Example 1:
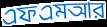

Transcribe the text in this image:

এফএমআর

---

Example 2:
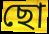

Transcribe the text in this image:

ছো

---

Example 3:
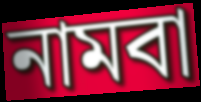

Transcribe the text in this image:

নামবা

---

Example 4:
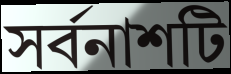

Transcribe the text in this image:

সর্বনাশটি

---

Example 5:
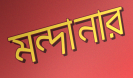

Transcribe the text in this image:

মন্দানার